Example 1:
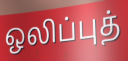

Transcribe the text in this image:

ஒலிப்புத்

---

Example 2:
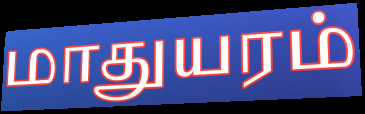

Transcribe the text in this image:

மாதுயரம்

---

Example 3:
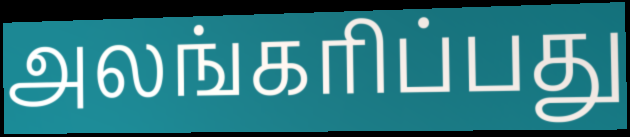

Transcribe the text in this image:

அலங்கரிப்பது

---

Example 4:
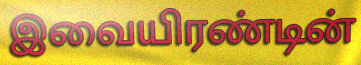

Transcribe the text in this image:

இவையிரண்டின்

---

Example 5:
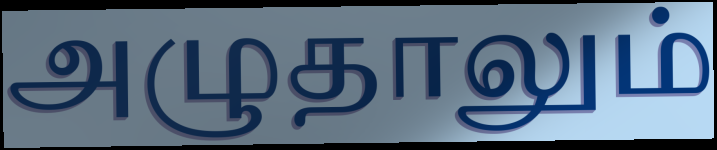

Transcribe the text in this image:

அழுதாலும்